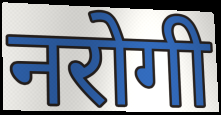
नरोगी